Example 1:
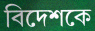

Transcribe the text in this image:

বিদেশকে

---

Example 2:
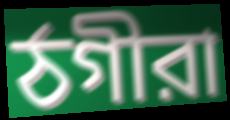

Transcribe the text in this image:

ঠগীরা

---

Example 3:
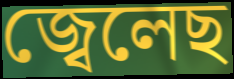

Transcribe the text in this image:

জ্বেলেছ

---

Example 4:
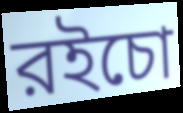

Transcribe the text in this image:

রইচো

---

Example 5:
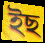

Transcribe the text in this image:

ইছ